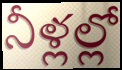
నీళ్లల్లో